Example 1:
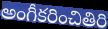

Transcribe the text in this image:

అంగీకరించితిరి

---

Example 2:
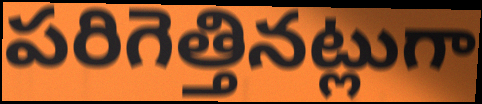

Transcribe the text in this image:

పరిగెత్తినట్లుగా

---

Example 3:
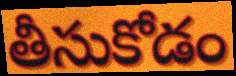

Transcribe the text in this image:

తీసుకోడం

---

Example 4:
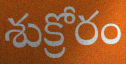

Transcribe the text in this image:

శుక్రోరం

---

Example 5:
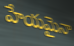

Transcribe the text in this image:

హేయమైనా